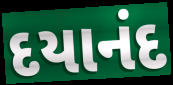
દયાનંદ